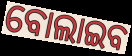
ବୋଲାଇବ